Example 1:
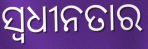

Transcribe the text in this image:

ସ୍ବଧୀନତାର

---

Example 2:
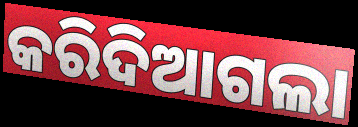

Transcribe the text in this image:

କରିଦିଆଗଲା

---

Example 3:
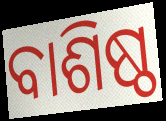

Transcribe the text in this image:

ବାଶିଷ୍ଠ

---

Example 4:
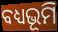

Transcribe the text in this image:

ବଧ୍ୟଭୂମି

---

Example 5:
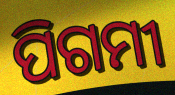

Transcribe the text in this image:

ପିଗମୀ